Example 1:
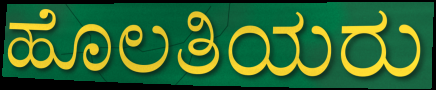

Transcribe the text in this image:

ಹೊಲತಿಯರು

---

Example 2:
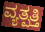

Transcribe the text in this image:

ವ್ಯತ್ಪತ್ತಿ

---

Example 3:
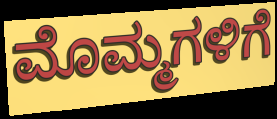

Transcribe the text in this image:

ಮೊಮ್ಮಗಳಿಗೆ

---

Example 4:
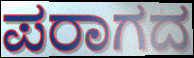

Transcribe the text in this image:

ಪರಾಗದ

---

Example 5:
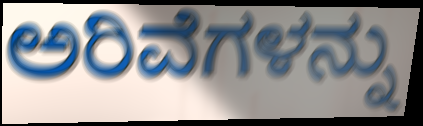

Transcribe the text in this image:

ಅರಿವೆಗಳನ್ನು